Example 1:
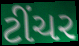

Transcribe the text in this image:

ટીંચર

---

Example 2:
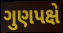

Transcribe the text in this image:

ગુણપક્ષે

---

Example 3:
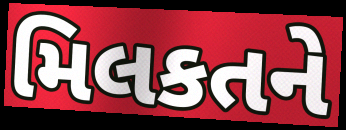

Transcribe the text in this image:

મિલકતને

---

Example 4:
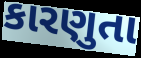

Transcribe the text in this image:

કારણુતા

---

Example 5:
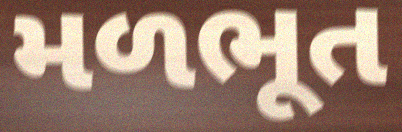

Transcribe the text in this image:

મળભૂત